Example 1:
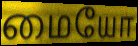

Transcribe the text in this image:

மையோ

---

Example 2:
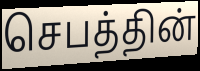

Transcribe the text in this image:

செபத்தின்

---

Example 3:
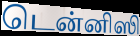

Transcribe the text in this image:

டென்னிஸி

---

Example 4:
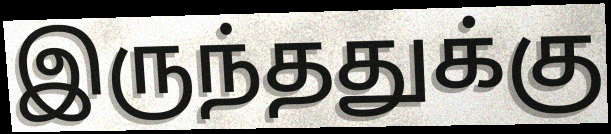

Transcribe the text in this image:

இருந்ததுக்கு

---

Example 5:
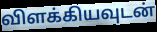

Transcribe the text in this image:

விளக்கியவுடன்